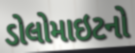
ડોલોમાઇટનો